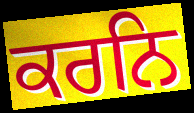
ਕਰਨਿ